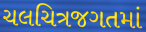
ચલચિત્રજગતમાં